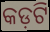
କଡ଼ଟି